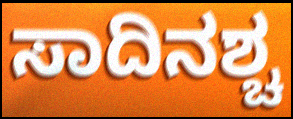
ಸಾದಿನಶ್ಚ